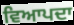
ਵਿਆਪਦਾ